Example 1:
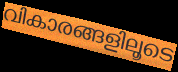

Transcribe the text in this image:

വികാരങ്ങളിലൂടെ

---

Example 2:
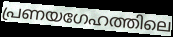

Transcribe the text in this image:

പ്രണയഗേഹത്തിലെ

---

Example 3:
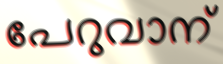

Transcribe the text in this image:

പേറുവാന്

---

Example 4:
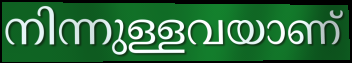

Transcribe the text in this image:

നിന്നുള്ളവയാണ്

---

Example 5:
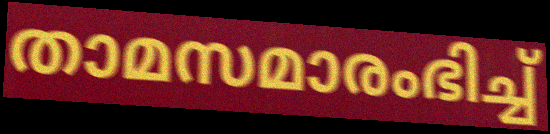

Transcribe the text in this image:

താമസമാരംഭിച്ച്